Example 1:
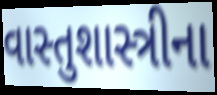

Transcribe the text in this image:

વાસ્તુશાસ્ત્રીના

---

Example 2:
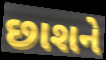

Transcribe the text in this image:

છાશને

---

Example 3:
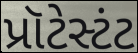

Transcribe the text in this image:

પ્રૉટેસ્ટંટ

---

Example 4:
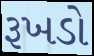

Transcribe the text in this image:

રૂખડો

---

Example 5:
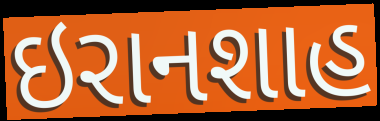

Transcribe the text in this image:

ઇરાનશાહ